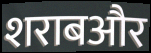
शराबऔर